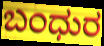
ಬಂಧುರ